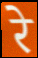
रे